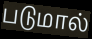
படுமால்